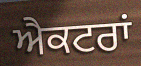
ਐਕਟਰਾਂ